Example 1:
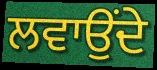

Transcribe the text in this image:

ਲਵਾਉਂਦੇ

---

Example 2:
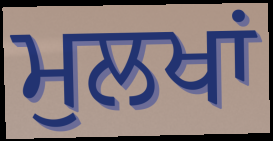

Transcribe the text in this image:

ਮੁਲਖਾਂ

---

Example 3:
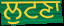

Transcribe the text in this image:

ਲੁਟਣਾ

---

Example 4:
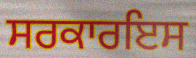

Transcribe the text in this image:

ਸਰਕਾਰਇਸ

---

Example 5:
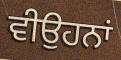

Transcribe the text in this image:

ਵੀਉਹਨਾਂ